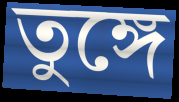
তুঙ্গে